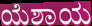
ಯೆಶಾಯ